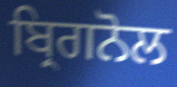
ਬ੍ਰਿਗਨੋਲ